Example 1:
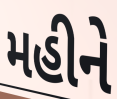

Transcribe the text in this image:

મહીને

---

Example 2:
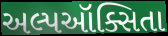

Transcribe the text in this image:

અલ્પઑક્સિતા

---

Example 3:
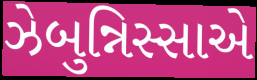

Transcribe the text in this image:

ઝેબુન્નિસ્સાએ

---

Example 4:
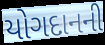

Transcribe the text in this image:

યોગદાનની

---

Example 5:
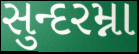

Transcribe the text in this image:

સુન્દરમ્ના